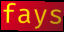
fays